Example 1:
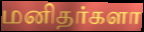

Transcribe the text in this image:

மனிதர்களா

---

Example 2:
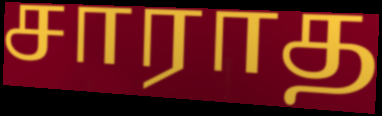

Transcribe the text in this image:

சாராத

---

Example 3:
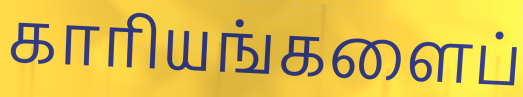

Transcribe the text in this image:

காரியங்களைப்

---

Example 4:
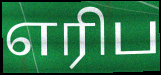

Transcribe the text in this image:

எரிப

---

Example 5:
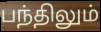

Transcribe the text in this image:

பந்திலும்